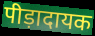
पीड़ादायक